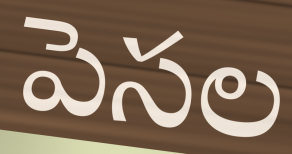
పెసల